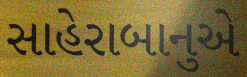
સાહેરાબાનુએ